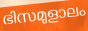
ഭിസമുളാലം